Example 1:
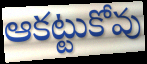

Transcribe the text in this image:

ఆకట్టుకోవు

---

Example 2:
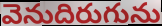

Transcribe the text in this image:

వెనుదిరుగును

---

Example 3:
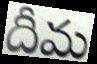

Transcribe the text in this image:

దీమ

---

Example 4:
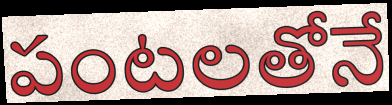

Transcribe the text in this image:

పంటలతోనే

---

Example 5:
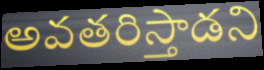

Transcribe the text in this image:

అవతరిస్తాడని